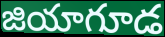
జియాగూడ